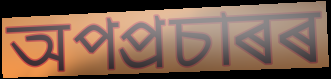
অপপ্ৰচাৰৰ